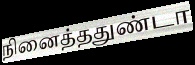
நினைத்ததுண்டா